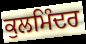
ਕੁਲਮਿੰਦਰ